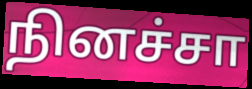
நினச்சா